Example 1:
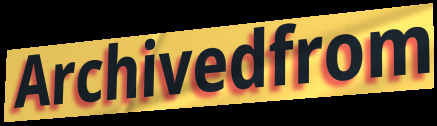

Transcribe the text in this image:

Archivedfrom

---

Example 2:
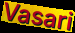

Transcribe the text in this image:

Vasari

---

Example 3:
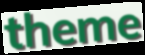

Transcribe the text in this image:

theme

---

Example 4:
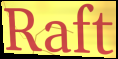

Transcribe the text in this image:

Raft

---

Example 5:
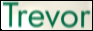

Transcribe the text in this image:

Trevor